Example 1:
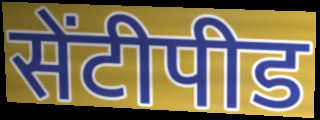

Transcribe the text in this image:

सेंटीपीड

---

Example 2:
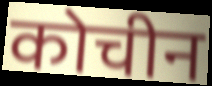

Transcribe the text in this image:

कोचीन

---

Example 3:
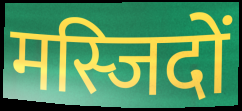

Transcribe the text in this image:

मस्‍जिदों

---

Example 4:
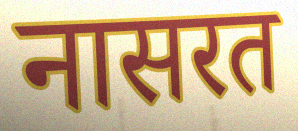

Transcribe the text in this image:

नासरत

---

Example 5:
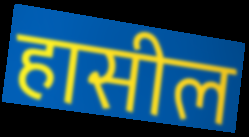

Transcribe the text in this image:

हासील